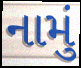
નામું